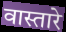
वास्तारे